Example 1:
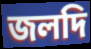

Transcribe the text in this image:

জলদি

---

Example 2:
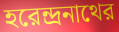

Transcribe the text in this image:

হরেন্দ্রনাথের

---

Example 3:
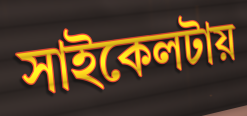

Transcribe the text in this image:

সাইকেলটায়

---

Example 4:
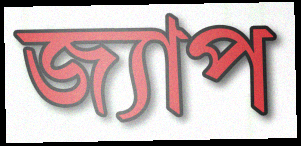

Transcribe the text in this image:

জ্যাপ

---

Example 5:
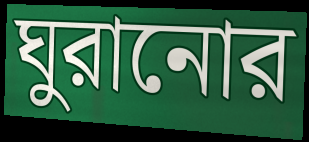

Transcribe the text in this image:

ঘুরানোর